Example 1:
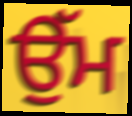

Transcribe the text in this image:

ਉੱਮ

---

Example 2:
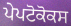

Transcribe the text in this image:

ਪੇਪਟੋਕੋਕਸ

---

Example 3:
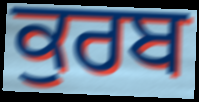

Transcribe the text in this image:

ਕੁਰਬ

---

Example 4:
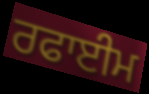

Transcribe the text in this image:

ਰਫਾਈਮ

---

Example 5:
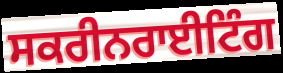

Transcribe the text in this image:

ਸਕਰੀਨਰਾਈਟਿੰਗ